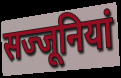
सज्जूनियां